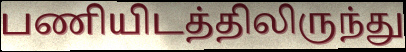
பணியிடத்திலிருந்து